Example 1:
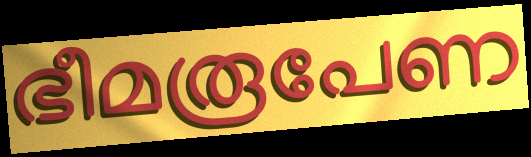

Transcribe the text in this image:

ഭീമരൂപേണ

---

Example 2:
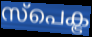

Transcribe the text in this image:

സ്‌പെക്ട്ര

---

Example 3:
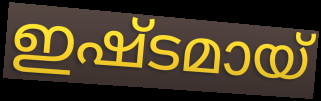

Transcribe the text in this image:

ഇഷ്ടമായ്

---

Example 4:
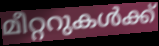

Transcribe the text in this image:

മീറ്ററുകൾക്ക്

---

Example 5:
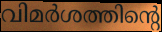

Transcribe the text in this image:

വിമർശത്തിന്റെ